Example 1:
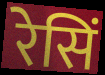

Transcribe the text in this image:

रेसिं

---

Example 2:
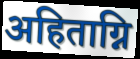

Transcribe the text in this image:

अहिताग्नि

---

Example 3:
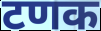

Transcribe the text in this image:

टणक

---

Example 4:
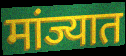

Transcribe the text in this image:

मांज्यात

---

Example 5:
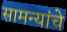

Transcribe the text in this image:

सामन्यांचे